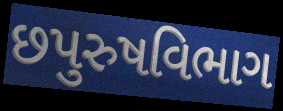
છપુરુષવિભાગ